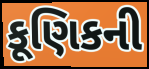
કૂણિકની